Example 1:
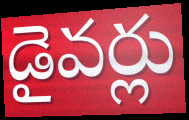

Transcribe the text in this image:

డైవర్లు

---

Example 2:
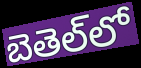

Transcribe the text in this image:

బెతెల్‌లో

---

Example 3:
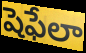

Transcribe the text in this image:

షెఫేలా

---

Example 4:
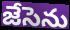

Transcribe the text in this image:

జేసెను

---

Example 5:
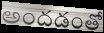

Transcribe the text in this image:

అందడంతో